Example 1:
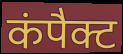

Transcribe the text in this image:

कंपैक्ट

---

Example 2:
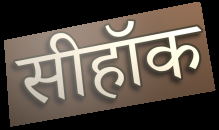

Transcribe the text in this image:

सीहॉक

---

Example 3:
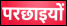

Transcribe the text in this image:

परछाइयों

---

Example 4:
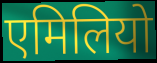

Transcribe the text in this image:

एमिलियो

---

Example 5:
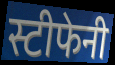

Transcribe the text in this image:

स्टीफेनी